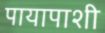
पायापाशी